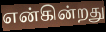
என்கின்றது